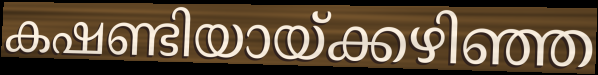
കഷണ്ടിയായ്ക്കഴിഞ്ഞ